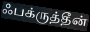
ஃபக்ருத்தீன்